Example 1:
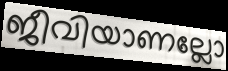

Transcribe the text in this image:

ജീവിയാണല്ലോ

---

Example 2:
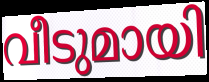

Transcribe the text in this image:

വീടുമായി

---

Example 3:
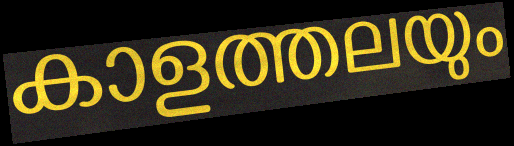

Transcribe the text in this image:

കാളത്തലയും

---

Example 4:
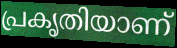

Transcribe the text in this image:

പ്രകൃതിയാണ്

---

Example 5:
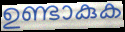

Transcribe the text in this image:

ഉണ്ടാകുക